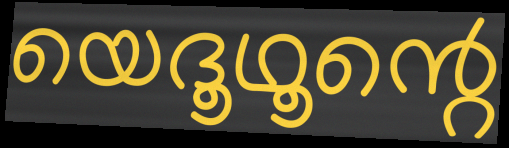
യെദൂഥൂന്റെ